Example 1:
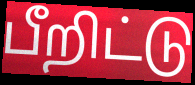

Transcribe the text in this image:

பீறிட்டு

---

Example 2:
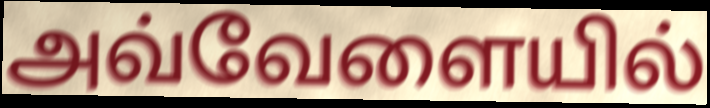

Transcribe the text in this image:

அவ்வேளையில்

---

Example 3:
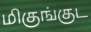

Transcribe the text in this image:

மிகுங்குட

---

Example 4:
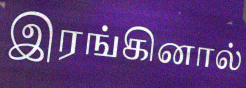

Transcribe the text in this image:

இரங்கினால்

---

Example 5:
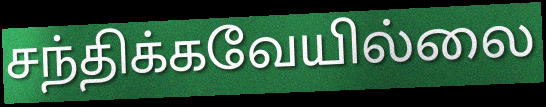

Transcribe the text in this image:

சந்திக்கவேயில்லை